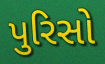
પુરિસો